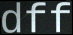
dff